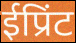
ईप्रिंट